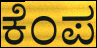
ಕೆಂಪ